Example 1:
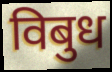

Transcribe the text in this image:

विबुध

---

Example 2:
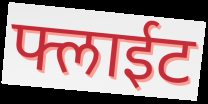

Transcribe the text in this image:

फ्लाईट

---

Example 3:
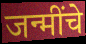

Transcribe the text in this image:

जन्मींचे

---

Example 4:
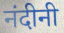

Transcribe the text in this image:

नंदीनी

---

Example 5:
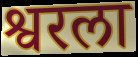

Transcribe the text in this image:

श्वरला